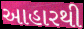
આહારથી